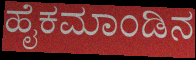
ಹೈಕಮಾಂಡಿನ